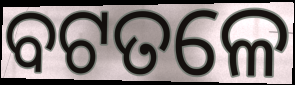
ବଟତଳେ